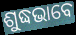
ଶୁଦ୍ଧଭାବେ